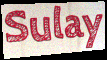
Sulay